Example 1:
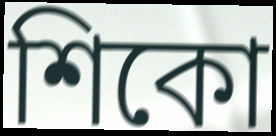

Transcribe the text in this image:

শিকো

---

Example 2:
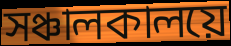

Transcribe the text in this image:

সঞ্চালকালয়ে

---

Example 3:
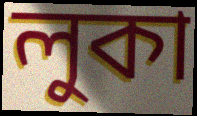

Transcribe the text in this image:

লুকা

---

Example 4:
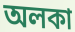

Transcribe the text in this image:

অলকা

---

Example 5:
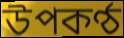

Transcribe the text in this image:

উপকণ্ঠ